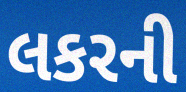
લકરની